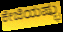
ಕೇಜಿಯಷ್ಟು